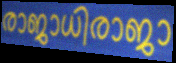
രാജാധിരാജാ